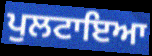
ਪੁਲਟਾਇਆ